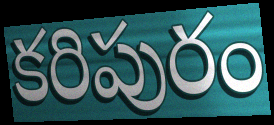
కరిపురం